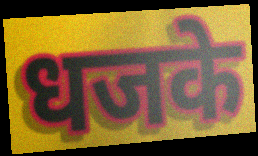
धजके